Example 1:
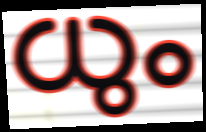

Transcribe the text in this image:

ധും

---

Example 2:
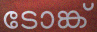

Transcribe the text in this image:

ടോങ്ക്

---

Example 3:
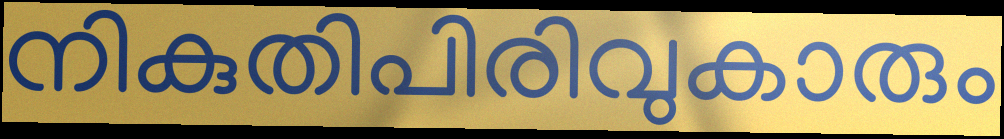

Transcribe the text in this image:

നികുതിപിരിവുകാരും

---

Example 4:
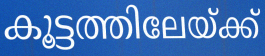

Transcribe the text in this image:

കൂട്ടത്തിലേയ്ക്ക്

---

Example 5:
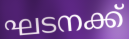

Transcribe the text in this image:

ഘടനക്ക്